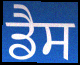
ਡੈਸ